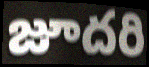
జూదరి